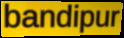
bandipur